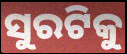
ସୁରଟିକୁ